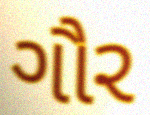
ગૌર